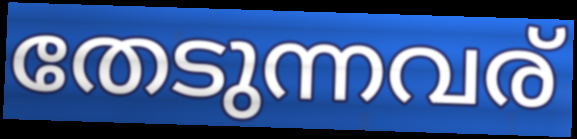
തേടുന്നവര്